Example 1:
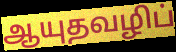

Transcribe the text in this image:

ஆயுதவழிப்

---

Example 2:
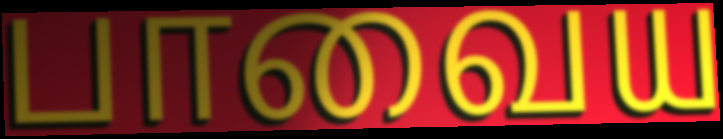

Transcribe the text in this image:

பாவைய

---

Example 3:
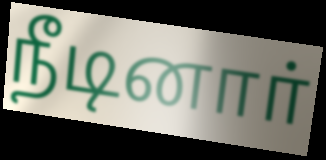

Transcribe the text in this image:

நீடினார்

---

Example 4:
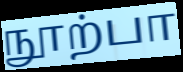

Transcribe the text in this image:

நூற்பா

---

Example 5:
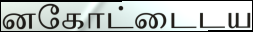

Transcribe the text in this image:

னகோட்டைடய